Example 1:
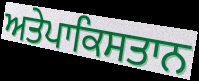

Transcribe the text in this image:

ਅਤੇਪਾਕਿਸਤਾਨ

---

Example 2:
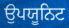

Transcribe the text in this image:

ਉਪਯੂਨਿਟ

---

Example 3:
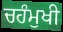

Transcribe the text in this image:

ਚਹੰਮੁਖੀ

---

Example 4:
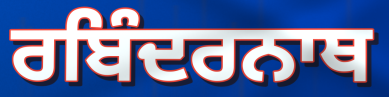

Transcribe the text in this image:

ਰਬਿੰਦਰਨਾਥ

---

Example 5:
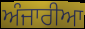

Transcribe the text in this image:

ਅੰਜਾਰੀਆ